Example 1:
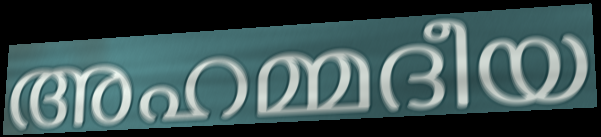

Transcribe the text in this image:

അഹമ്മദീയ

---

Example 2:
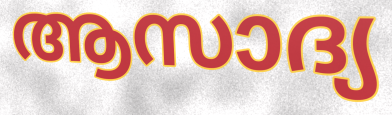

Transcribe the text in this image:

ആസാദ്യ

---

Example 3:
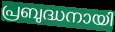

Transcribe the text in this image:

പ്രബുദ്ധനായി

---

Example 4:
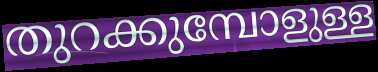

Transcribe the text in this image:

തുറക്കുമ്പോളുള്ള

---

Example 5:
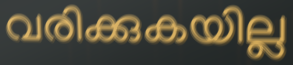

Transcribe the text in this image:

വരിക്കുകയില്ല